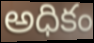
అధికం